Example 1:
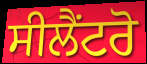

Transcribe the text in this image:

ਸੀਲੈਂਟਰੋ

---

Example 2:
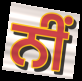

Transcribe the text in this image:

ਨੀਂ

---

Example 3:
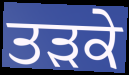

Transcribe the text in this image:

ਤੜਕੇ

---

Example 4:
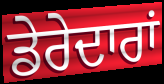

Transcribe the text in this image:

ਡੇਰੇਦਾਰਾਂ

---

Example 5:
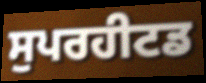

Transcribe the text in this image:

ਸੁਪਰਹੀਟਡ